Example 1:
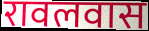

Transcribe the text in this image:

रावलवास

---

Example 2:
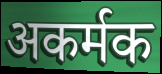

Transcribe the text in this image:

अकर्मक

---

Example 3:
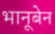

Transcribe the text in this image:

भानूबेन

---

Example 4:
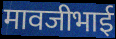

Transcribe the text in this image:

मावजीभाई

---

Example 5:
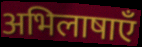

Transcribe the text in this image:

अभिलाषाएँ